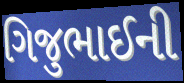
ગિજુભાઈની